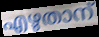
എഴുതാന്